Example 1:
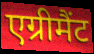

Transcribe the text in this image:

एग्रीमैंट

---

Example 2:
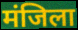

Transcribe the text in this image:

मंजिला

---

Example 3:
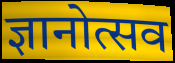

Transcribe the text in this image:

ज्ञानोत्सव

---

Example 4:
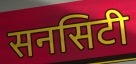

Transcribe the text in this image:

सनसिटी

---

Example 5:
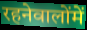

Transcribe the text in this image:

रहनेवालोंमें